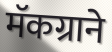
मॅकग्राने